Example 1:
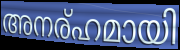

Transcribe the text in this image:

അനര്ഹമായി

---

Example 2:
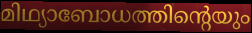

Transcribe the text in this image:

മിഥ്യാബോധത്തിന്റെയും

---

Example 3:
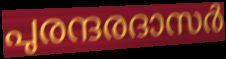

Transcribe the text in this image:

പുരന്ദരദാസർ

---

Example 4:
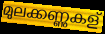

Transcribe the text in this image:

മുലക്കണ്ണുകള്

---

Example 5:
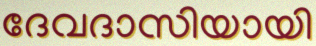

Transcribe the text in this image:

ദേവദാസിയായി